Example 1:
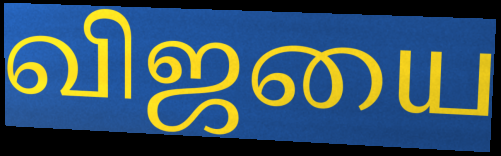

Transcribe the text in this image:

விஜயை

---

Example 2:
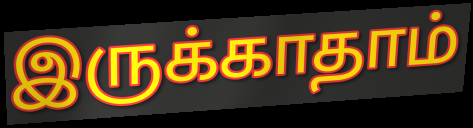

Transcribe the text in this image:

இருக்காதாம்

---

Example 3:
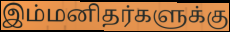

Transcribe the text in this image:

இம்மனிதர்களுக்கு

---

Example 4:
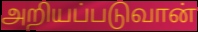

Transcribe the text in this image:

அறியப்படுவான்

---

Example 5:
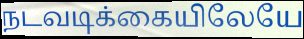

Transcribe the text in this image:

நடவடிக்கையிலேயே